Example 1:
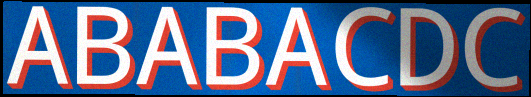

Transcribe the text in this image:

ABABACDC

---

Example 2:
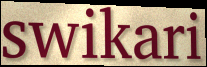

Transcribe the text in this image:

swikari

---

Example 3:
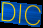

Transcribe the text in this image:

DIC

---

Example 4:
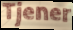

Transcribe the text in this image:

Tjener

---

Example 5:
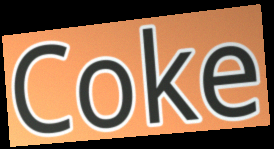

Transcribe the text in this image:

Coke